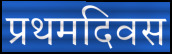
प्रथमदिवस